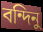
বন্দিনু